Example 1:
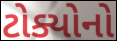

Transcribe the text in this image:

ટોક્યોનો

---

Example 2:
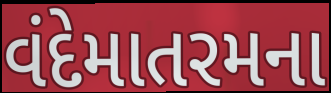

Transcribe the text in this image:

વંદેમાતરમના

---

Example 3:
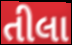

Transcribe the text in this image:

તીલા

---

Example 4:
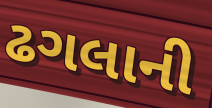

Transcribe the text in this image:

ઢગલાની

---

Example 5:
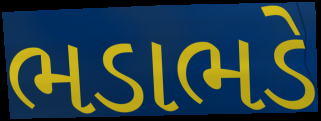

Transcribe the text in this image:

ભડાભડે